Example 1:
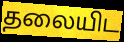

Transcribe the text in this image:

தலையிட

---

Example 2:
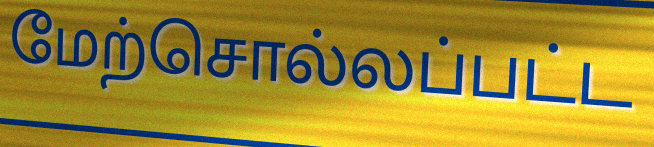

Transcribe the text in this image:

மேற்சொல்லப்பட்ட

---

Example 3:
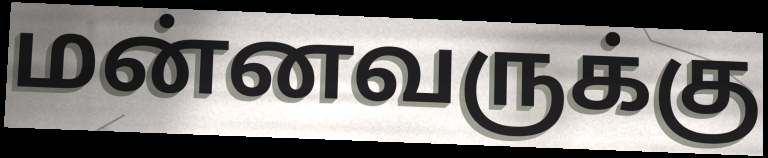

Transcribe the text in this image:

மன்னவருக்கு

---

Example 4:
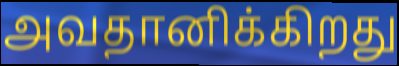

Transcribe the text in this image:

அவதானிக்கிறது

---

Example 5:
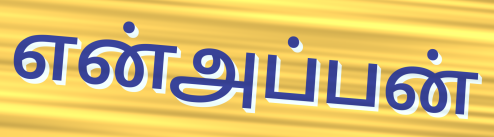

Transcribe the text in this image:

என்அப்பன்